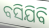
ବସିଯିବି